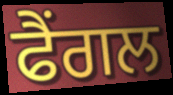
ਫੈਂਗਲ